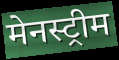
मेनस्‍ट्रीम